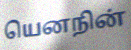
யெனநின்